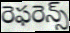
రెఫరెన్స్